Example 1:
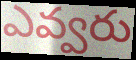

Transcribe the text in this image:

ఎవ్వరు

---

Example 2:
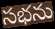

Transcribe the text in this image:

సభను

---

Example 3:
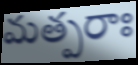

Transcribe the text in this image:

మత్పరాః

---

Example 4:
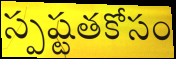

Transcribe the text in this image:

స్పష్టతకోసం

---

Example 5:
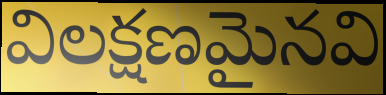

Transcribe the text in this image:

విలక్షణమైనవి